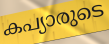
കപ്യാരുടെ